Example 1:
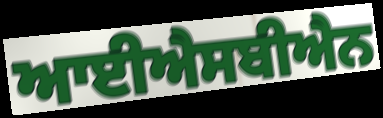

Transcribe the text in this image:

ਆਈਐਸਬੀਐਨ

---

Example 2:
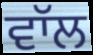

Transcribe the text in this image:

ਵਾੱਲ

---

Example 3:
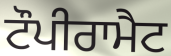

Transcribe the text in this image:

ਟੌਪੀਰਾਮੈਟ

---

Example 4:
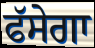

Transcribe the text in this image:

ਫੱਸੇਗਾ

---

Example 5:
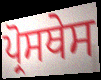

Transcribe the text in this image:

ਪ੍ਰੋਸਥੇਸ